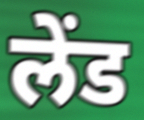
लेंड